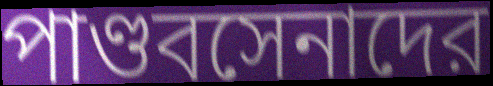
পাণ্ডবসেনাদের